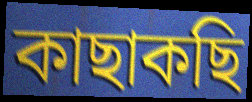
কাছাকছি